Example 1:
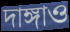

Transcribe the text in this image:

দাঙ্গাও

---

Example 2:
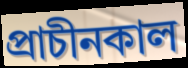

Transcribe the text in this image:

প্রাচীনকাল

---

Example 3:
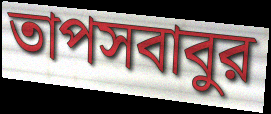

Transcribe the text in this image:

তাপসবাবুর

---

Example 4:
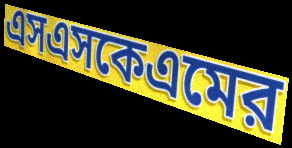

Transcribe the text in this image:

এসএসকেএমের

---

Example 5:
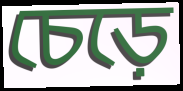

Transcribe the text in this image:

চেড়ে